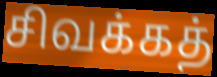
சிவக்கத்